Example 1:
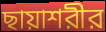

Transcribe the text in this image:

ছায়াশরীর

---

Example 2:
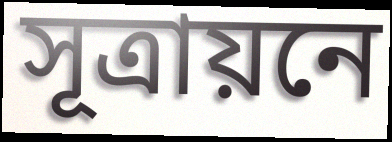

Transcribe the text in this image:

সূত্রায়নে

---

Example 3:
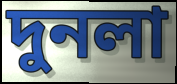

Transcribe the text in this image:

দুনলা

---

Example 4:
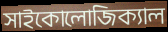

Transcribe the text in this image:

সাইকোলোজিক্যাল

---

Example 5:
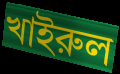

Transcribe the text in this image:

খাইরুল